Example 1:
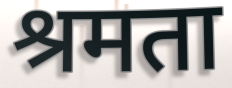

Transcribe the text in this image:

श्रमता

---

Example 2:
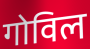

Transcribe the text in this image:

गोविल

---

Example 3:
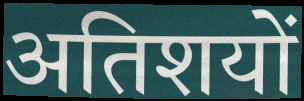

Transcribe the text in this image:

अतिशयों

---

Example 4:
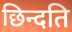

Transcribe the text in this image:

छिन्दति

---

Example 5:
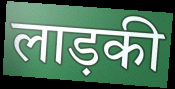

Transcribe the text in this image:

लाड़की